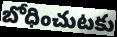
బోధించుటకు